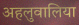
अहलुवालिया